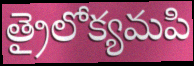
త్రైలోక్యమపి